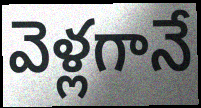
వెళ్లగానే